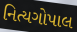
નિત્યગોપાલ